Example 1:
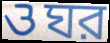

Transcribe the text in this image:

ওঘর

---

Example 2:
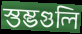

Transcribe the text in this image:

স্তম্ভগুলি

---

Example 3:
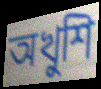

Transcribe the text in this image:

অখুশি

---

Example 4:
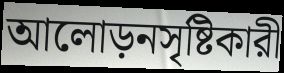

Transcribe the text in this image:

আলোড়নসৃষ্টিকারী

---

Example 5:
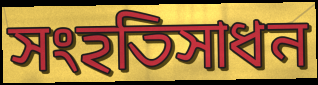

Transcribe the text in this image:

সংহতিসাধন